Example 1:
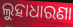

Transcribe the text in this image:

ଲୁହାଧାରଣା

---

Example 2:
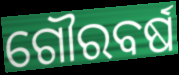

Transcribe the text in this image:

ଗୌରବର୍ଷ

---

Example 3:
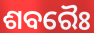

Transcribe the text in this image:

ଶବରୈଃ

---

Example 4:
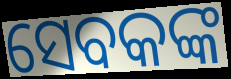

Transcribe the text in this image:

ସେବକଙ୍କ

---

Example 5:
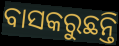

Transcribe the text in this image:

ବାସକରୁଛନ୍ତି